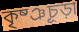
কৃষ্ঞচূড়া